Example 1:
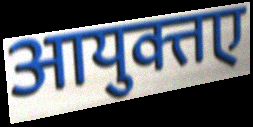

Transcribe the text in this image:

आयुक्तए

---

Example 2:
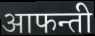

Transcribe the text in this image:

आफन्ती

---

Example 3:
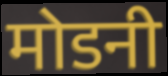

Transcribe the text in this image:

मोडनी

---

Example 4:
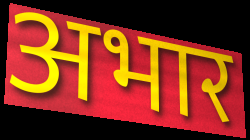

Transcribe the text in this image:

अभार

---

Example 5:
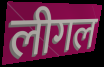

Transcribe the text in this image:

लीगल